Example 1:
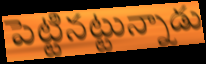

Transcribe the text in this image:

పెట్టినట్టున్నాడు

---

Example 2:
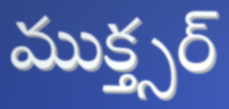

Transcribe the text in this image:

ముక్త్సర్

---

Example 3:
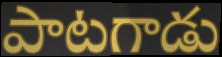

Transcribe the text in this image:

పాటగాడు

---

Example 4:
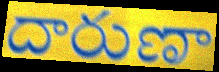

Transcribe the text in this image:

దారుణా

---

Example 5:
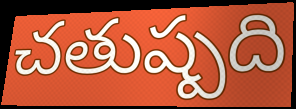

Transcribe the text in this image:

చతుష్పది